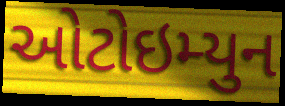
ઓટોઇમ્યુન